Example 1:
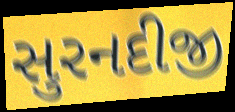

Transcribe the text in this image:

સુરનદીજી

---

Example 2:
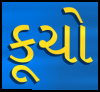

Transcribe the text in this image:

કૂચો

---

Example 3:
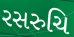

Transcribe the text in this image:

રસરુચિ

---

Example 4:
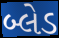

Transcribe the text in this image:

બ્લેડ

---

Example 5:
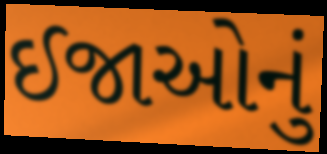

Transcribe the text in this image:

ઈજાઓનું